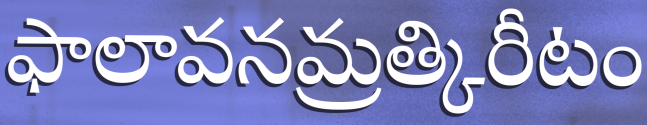
ఫాలావనమ్రత్కిరీటం